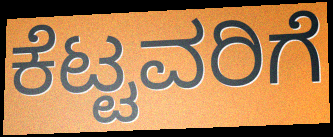
ಕೆಟ್ಟವರಿಗೆ